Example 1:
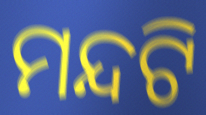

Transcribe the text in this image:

ମନ୍ଦଟି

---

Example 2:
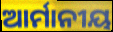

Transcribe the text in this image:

ଆର୍ମାନୀୟ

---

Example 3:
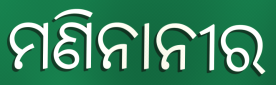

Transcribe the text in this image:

ମଣିନାନୀର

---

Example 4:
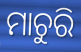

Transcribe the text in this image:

ମାଚୁରି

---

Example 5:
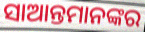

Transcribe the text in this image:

ସାଆନ୍ତମାନଙ୍କର